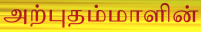
அற்புதம்மாளின்